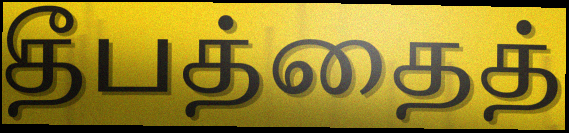
தீபத்தைத்